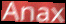
Anax